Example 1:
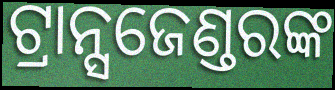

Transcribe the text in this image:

ଟ୍ରାନ୍ସଜେଣ୍ଡରଙ୍କ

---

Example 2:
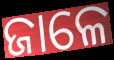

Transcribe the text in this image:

ଜାଳେ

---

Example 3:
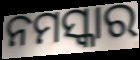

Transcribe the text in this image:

ନମସ୍କାର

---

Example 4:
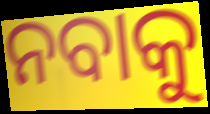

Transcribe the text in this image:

ନବାକୁ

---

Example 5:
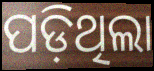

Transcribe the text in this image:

ପଡ଼ିଥିଲା